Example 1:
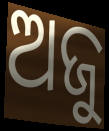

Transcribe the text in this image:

ଅଜୁ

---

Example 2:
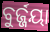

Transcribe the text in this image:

ବୁର୍ଜ୍ଜୟା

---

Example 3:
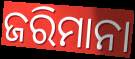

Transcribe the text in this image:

ଜରିମାନା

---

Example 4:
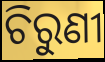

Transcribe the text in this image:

ଚିରୁଣୀ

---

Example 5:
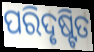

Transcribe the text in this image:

ପରିଦୃଷ୍ଟିତ